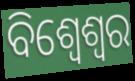
ବିଶ୍ୱେଶ୍ୱର